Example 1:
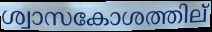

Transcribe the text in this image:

ശ്വാസകോശത്തില്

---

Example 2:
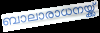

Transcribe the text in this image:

ബാലാരാധനയ്ക്ക്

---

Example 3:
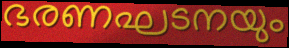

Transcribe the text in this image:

ഭരണഘടനയും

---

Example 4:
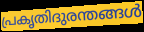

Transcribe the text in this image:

പ്രകൃതിദുരന്തങ്ങൾ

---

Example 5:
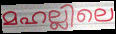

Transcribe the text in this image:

മഹല്ലിലെ